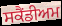
ਸਕੈਂਡੀਅਮ